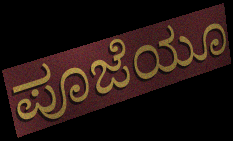
ಪೂಜೆಯೂ